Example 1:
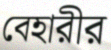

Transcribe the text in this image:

বেহারীর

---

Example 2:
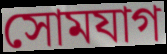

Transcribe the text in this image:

সোমযাগ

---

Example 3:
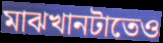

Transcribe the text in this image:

মাঝখানটাতেও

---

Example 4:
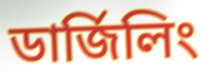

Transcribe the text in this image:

ডার্জিলিং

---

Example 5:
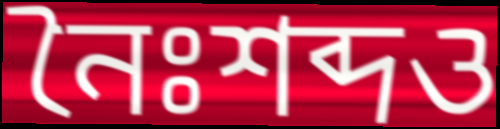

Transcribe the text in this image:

নৈঃশব্দও